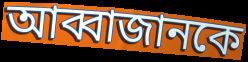
আব্বাজানকে